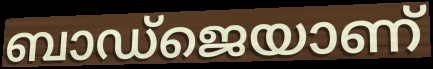
ബാഡ്ജെയാണ്